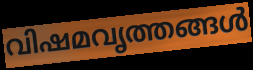
വിഷമവൃത്തങ്ങൾ